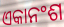
ଏକାନଂଶ